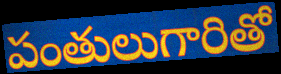
పంతులుగారితో